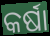
କର୍ଷା